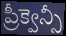
ప్రీక్వెన్సీ